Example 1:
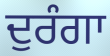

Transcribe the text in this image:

ਦੁਰੰਗਾ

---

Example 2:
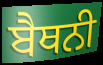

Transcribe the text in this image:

ਬੈਥਨੀ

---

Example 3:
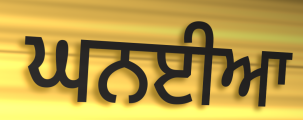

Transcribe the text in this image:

ਘਨਈਆ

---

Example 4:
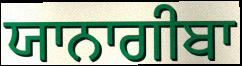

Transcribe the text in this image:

ਯਾਨਾਗੀਬਾ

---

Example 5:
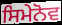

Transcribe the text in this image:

ਸਿਮੇਨੋਵ